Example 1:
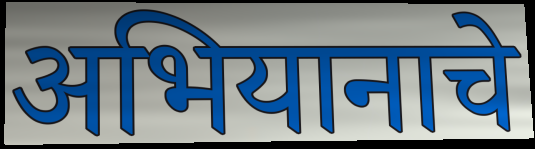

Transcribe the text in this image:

अभियानाचे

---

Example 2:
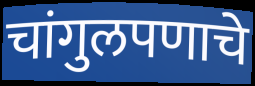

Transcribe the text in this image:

चांगुलपणाचे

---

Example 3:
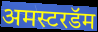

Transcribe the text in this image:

अमस्टरडॅम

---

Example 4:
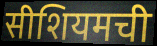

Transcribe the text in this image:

सीशियमची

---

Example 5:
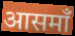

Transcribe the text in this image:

आसमाँ